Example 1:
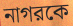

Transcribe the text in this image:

নাগরকে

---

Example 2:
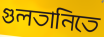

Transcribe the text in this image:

গুলতানিতে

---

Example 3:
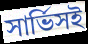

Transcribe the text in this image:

সার্ভিসই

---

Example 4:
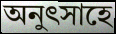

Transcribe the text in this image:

অনুৎসাহে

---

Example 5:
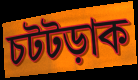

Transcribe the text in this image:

চটটড়াক